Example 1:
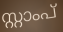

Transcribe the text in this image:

സ്റ്റാംപ്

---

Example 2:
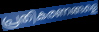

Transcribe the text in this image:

പ്രതികരണങ്ങളെ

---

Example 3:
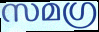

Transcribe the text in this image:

സമഗ്ര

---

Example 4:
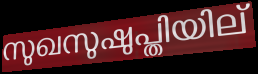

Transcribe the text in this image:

സുഖസുഷുപ്തിയില്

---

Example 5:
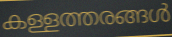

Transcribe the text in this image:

കള്ളത്തരങ്ങൾ